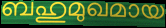
ബഹുമുഖമായ